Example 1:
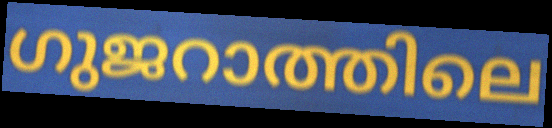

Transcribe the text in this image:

ഗുജറാത്തിലെ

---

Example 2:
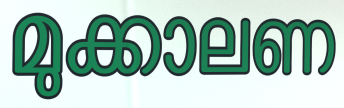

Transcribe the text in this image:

മുക്കാലണ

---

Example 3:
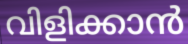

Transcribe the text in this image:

വിളിക്കാൻ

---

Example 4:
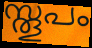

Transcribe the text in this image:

സ്തൂപം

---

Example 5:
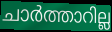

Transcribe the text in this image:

ചാർത്താറില്ല